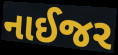
નાઈજર